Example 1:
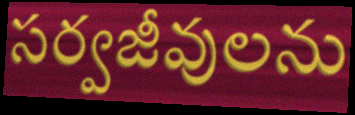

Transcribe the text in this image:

సర్వజీవులను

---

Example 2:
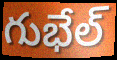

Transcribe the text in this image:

గుభేల్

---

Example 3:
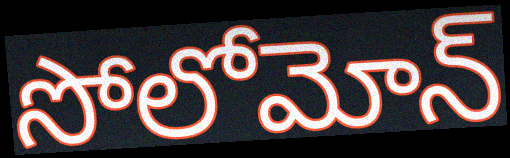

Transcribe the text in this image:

సోలోమోన్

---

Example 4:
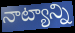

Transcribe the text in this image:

నాట్యాన్ని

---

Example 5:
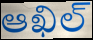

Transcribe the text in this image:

ఆఖిల్